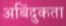
अबिंदुकता